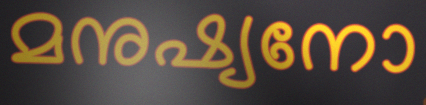
മനുഷ്യനോ